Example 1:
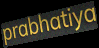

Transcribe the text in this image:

prabhatiya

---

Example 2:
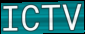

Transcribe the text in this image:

ICTV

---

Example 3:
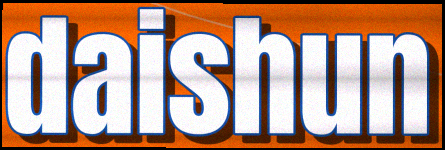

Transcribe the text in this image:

daishun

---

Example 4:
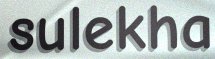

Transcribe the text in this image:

sulekha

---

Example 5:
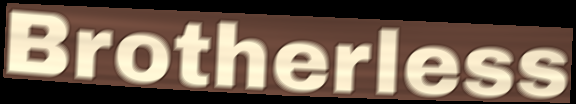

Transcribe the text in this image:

Brotherless